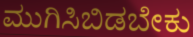
ಮುಗಿಸಿಬಿಡಬೇಕು